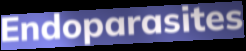
Endoparasites